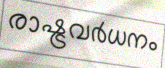
രാഷ്ട്രവർധനം